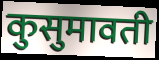
कुसुमावती